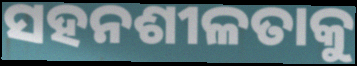
ସହନଶୀଳତାକୁ